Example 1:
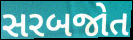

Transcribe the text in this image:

સરબજોત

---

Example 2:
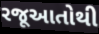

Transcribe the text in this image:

રજૂઆતોથી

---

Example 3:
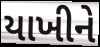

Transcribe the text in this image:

યાખીને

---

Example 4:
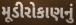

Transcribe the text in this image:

મૂડીરોકાણનું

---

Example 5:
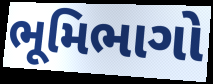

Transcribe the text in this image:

ભૂમિભાગો